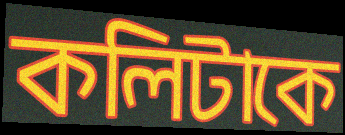
কলিটাকে